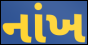
નાંખ